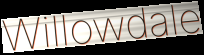
Willowdale